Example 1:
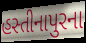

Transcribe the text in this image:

હસ્તીનાપુરના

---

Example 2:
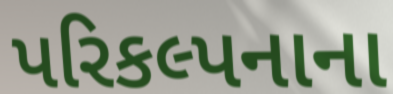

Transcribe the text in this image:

પરિકલ્પનાના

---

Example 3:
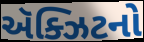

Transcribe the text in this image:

ઍક્ઝિટનો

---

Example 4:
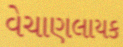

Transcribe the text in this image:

વેચાણલાયક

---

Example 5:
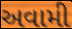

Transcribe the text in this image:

અવામી